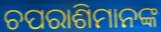
ଚପରାଶିମାନଙ୍କ